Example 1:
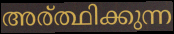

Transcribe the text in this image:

അര്ത്ഥിക്കുന്ന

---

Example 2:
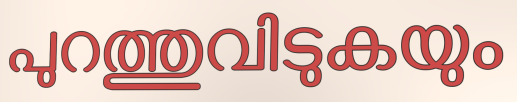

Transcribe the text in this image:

പുറത്തുവിടുകയും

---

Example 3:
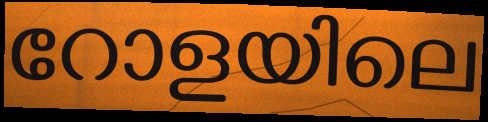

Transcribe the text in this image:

റോളയിലെ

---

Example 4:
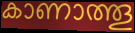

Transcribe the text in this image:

കാണാത്തൂ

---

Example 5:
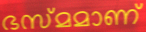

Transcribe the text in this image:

ഭസ്മമാണ്